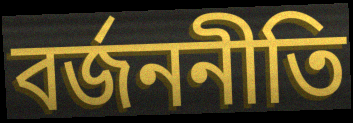
বর্জননীতি